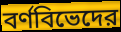
বর্ণবিভেদের